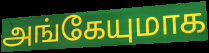
அங்கேயுமாக